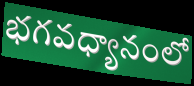
భగవధ్యానంలో